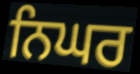
ਨਿਘਰ